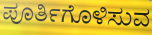
ಪೂರ್ತಿಗೊಳಿಸುವ